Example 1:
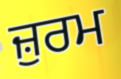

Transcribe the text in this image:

ਜ਼ੁਰਮ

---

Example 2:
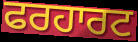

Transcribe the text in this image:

ਫਰਹਾਰਟ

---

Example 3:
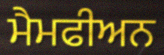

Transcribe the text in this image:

ਮੈਮਫੀਅਨ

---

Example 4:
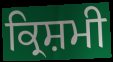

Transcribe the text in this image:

ਕ੍ਰਿਸ਼ਮੀ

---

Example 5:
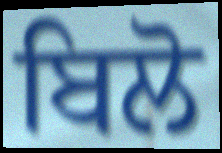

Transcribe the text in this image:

ਬਿਲੋ